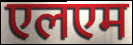
एलएम